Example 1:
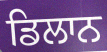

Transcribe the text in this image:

ਡਿਲਾਨ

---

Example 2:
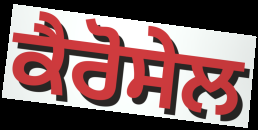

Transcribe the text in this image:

ਕੈਰੋਸੇਲ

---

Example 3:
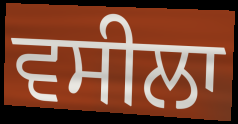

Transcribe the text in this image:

ਵਸੀਲਾ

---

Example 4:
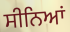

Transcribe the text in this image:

ਸੀਨਿਆਂ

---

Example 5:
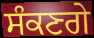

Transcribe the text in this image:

ਸੰਕਣਗੇ